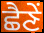
ਛੈਣੇਂ